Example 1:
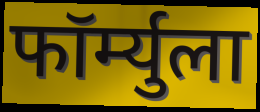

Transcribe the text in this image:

फॉर्म्युला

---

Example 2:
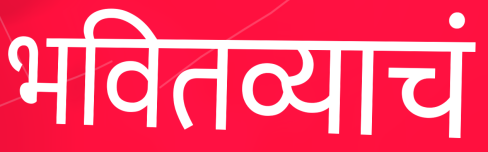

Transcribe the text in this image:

भवितव्याचं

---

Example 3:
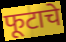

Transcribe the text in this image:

फूटाचे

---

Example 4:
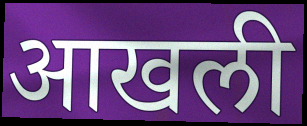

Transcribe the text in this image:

आखली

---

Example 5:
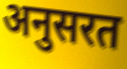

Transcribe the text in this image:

अनुसरत